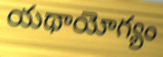
యథాయోగ్యం